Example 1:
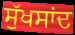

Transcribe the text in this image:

ਸੁੱਖਸਾਂਦ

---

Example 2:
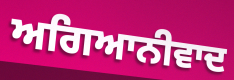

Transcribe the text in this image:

ਅਗਿਆਨੀਵਾਦ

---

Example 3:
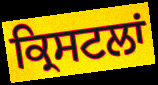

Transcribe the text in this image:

ਕ੍ਰਿਸਟਲਾਂ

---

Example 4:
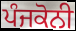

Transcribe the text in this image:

ਪੰਜਕੋਨੀ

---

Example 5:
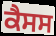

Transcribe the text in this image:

ਕੈਸਸ